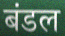
बंडल